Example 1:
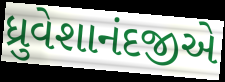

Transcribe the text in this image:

ધ્રુવેશાનંદજીએ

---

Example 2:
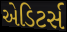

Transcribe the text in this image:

એડિટર્સ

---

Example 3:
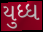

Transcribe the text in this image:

યુધ્ધ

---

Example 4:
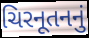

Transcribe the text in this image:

ચિરનૂતનનું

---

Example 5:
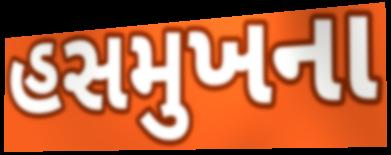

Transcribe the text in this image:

હસમુખના